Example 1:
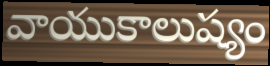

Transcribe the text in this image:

వాయుకాలుష్యం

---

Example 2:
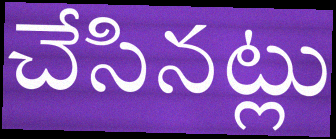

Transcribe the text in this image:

చేసినట్లు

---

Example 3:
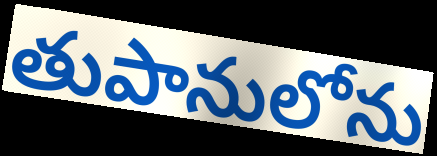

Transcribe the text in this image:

తుపానులోను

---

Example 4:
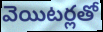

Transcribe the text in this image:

వెయిటర్లతో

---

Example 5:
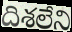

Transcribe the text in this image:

దిశలేని